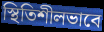
স্থিতিশীলভাবে